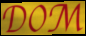
DOM